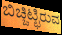
ಬಿಚ್ಚಿಟ್ಟಿರುವ